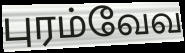
புரம்வேவ